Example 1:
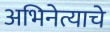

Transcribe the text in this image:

अभिनेत्याचे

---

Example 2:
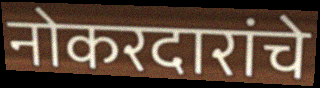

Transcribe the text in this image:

नोकरदारांचे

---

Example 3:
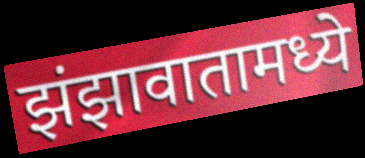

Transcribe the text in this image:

झंझावातामध्ये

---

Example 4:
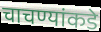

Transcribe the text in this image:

चाचण्यांकडे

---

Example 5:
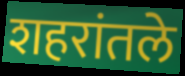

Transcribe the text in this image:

शहरांतले